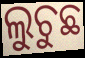
ଲୁଚୁଛ